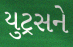
યુટ્રસને